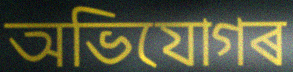
অভিযোগৰ